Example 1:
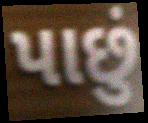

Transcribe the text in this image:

પાછું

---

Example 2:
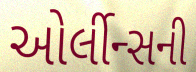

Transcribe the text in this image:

ઓર્લીન્સની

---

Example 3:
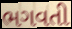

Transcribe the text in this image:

ભગવતી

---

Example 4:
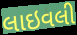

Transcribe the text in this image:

લાઇવલી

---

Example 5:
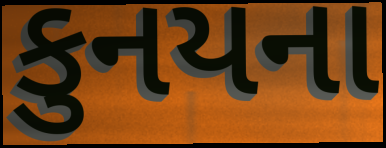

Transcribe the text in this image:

કુનયના